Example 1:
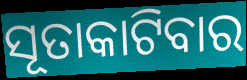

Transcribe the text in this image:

ସୂତାକାଟିବାର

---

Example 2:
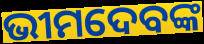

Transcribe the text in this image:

ଭୀମଦେବଙ୍କ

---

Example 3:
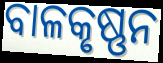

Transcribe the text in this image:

ବାଳକୃଷ୍ଣନ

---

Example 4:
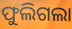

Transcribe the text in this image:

ଫୁଲିଗଲା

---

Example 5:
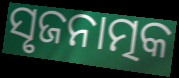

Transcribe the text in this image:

ସୃଜନାତ୍ମକ